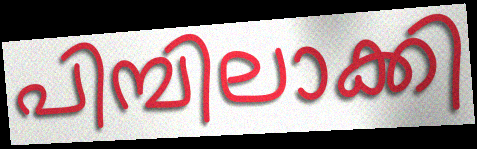
പിമ്പിലാക്കി